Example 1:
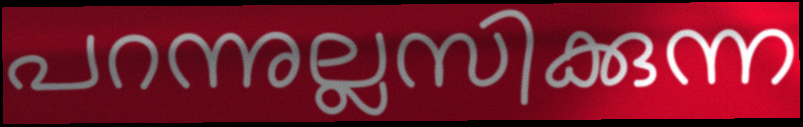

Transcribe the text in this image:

പറന്നുല്ലസിക്കുന്ന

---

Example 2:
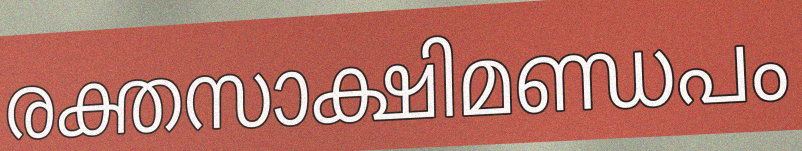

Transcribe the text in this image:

രക്തസാക്ഷിമണ്ഡപം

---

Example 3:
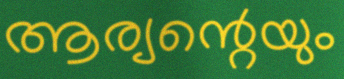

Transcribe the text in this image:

ആര്യന്റെയും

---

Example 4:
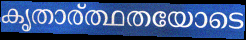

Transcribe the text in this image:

കൃതാര്ത്ഥതയോടെ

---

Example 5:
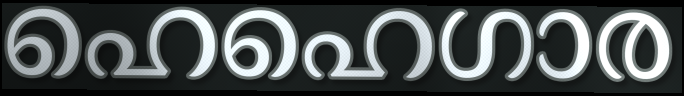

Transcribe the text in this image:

ഹെഹെഗാര